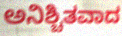
ಅನಿಶ್ಚಿತವಾದ